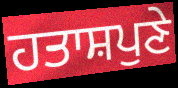
ਹਤਾਸ਼ਪੁਣੇ